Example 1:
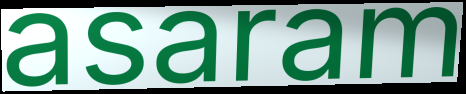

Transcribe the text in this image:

asaram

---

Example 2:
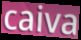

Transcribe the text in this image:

caiva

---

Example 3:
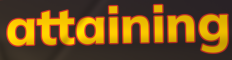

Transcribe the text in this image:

attaining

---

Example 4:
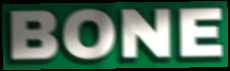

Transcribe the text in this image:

BONE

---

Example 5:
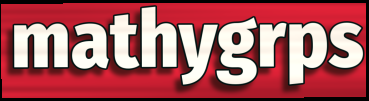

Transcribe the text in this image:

mathygrps